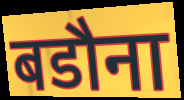
बडौना